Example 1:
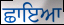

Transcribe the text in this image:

ਛਾਇਆ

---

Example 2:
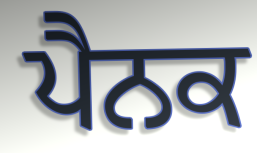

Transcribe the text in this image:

ਪੈਨਕ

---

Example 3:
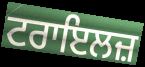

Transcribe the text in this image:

ਟਰਾਇਲਜ਼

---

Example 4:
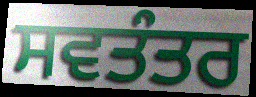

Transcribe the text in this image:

ਸਵਤੰਤਰ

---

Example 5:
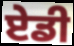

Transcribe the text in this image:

ਏਡੀ